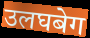
उलघबेग